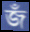
জঁ